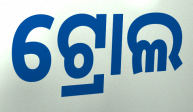
ଟ୍ରୋଲ